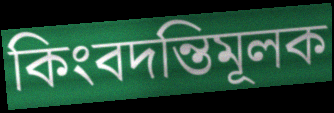
কিংবদন্তিমূলক